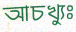
আচখ্যুঃ